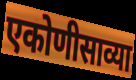
एकोणीसाव्या